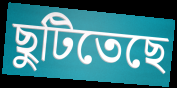
ছুটিতেছে